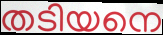
തടിയനെ